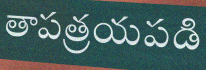
తాపత్రయపడి